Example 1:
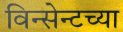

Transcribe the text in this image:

विन्सेन्टच्या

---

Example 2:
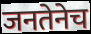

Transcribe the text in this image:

जनतेनेच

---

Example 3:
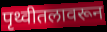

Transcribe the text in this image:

पृथ्वीतलावरून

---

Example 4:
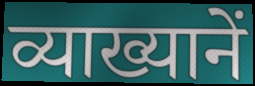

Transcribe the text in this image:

व्याख्यानें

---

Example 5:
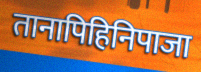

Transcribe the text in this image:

तानापिहिनिपाजा